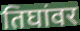
तिघांवर